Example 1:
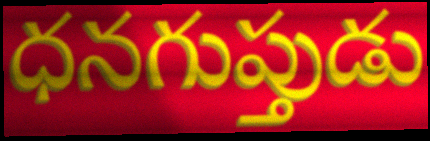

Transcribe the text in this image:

ధనగుప్తుడు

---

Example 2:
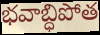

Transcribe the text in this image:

భవాబ్ధిపోత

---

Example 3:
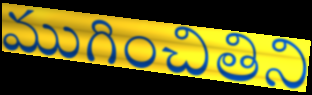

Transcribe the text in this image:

ముగించితిని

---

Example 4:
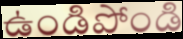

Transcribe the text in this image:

ఉండిపోండి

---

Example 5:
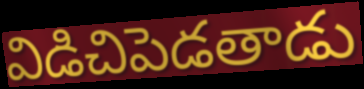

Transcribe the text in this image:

విడిచిపెడతాడు